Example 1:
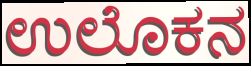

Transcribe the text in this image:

ಉಲೊಕನ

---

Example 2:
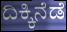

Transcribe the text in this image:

ದಿಕ್ಕಿನೆಡೆ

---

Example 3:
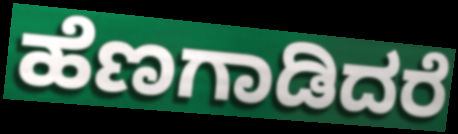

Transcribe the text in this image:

ಹೆಣಗಾಡಿದರೆ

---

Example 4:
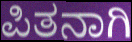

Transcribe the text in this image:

ಪಿತನಾಗಿ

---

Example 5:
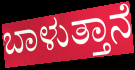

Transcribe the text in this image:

ಬಾಳುತ್ತಾನೆ